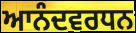
ਆਨੰਦਵਰਧਨ